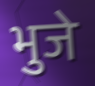
भुजे